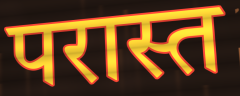
परास्त